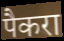
पैकरा